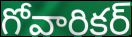
గోవారికర్